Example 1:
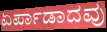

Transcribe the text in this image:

ಏರ್ಪಾಡಾದವು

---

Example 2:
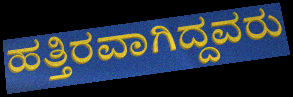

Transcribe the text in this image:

ಹತ್ತಿರವಾಗಿದ್ದವರು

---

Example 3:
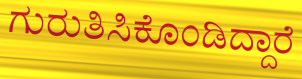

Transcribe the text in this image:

ಗುರುತಿಸಿಕೊಂಡಿದ್ದಾರೆ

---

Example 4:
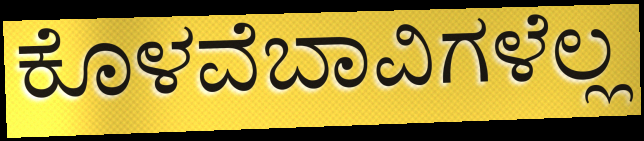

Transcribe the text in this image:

ಕೊಳವೆಬಾವಿಗಳೆಲ್ಲ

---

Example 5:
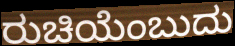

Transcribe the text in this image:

ರುಚಿಯೆಂಬುದು